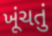
ખૂંચતું